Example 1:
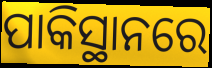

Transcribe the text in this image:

ପାକିସ୍ଥାନରେ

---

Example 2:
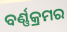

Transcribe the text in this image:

ବର୍ଣ୍ଣକ୍ରମର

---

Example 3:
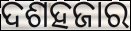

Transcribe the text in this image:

ଦଶହଜାର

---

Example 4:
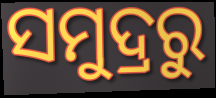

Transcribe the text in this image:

ସମୁଦ୍ରରୁ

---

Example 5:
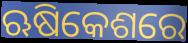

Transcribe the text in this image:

ଋଷିକେଶରେ